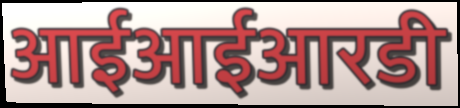
आईआईआरडी